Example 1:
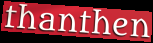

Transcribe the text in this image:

thanthen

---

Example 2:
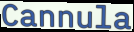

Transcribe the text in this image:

Cannula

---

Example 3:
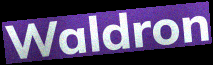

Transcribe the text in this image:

Waldron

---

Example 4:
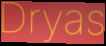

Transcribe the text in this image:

Dryas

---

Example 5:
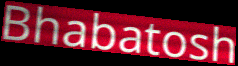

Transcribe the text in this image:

Bhabatosh